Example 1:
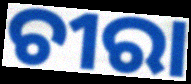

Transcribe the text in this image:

ଚୀରା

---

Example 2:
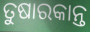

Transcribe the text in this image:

ତୁଷାରକାନ୍ତ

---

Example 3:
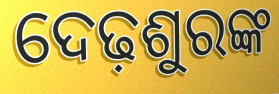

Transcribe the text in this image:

ଦେଢ଼ଶୁରଙ୍କ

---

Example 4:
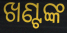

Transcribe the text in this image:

ଖଣ୍ଟଙ୍କ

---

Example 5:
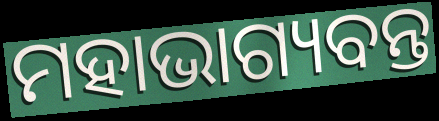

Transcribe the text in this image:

ମହାଭାଗ୍ୟବନ୍ତ